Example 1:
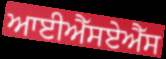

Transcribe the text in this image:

ਆਈਐੱਸਏਐੱਸ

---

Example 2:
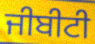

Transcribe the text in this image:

ਜੀਬੀਟੀ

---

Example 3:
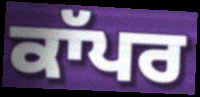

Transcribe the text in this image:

ਕਾੱਪਰ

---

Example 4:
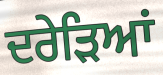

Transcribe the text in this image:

ਦਰੇੜਿਆਂ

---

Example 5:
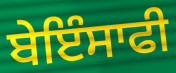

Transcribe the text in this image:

ਬੇਇੰਸਾਫੀ